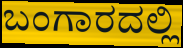
ಬಂಗಾರದಲ್ಲಿ